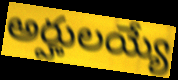
అర్హులయ్యే